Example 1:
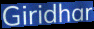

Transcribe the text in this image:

Giridhar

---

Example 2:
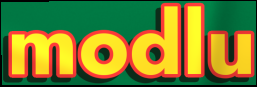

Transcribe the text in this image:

modlu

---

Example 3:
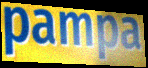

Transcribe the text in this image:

pampa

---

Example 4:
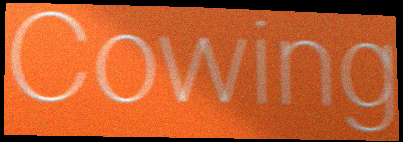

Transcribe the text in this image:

Cowing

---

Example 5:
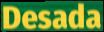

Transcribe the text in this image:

Desada